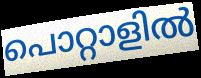
പൊറ്റാളിൽ